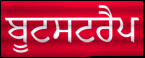
ਬੂਟਸਟਰੈਪ